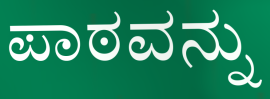
ಪಾಠವನ್ನು